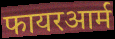
फायरआर्म